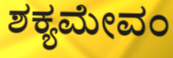
ಶಕ್ಯಮೇವಂ